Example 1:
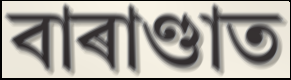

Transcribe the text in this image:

বাৰাণ্ডাত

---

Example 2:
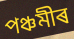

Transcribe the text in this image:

পঞ্চমীৰ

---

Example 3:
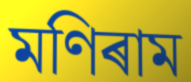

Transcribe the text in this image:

মণিৰাম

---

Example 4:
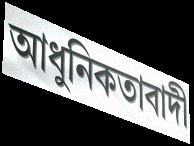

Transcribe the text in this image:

আধুনিকতাবাদী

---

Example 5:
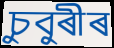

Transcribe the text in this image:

চুবুৰীৰ